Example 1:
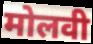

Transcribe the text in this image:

मोलवी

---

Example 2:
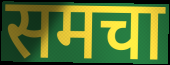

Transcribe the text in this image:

समचा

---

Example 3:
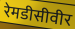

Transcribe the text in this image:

रेमडीसीवीर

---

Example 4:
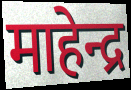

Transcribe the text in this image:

माहेन्द्र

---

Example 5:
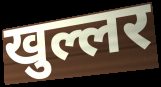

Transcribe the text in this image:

खुल्लर